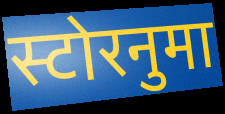
स्टोरनुमा